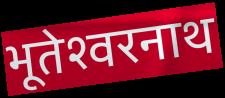
भूतेश्वरनाथ